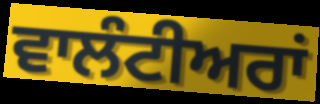
ਵਾਲੰਟੀਅਰਾਂ